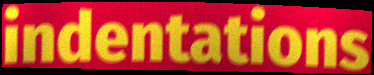
indentations